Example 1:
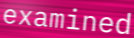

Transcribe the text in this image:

examined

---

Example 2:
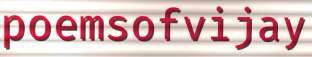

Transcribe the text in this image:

poemsofvijay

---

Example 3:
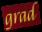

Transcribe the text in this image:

grad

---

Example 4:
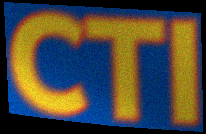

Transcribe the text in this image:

CTI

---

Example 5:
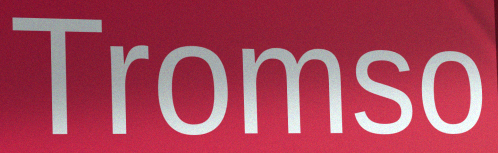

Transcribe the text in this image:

Tromso